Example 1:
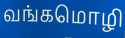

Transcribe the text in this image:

வங்கமொழி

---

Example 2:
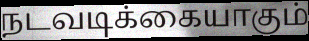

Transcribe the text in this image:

நடவடிக்கையாகும்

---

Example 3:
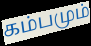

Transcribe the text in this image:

கம்பமும்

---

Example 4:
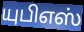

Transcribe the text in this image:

யுபிஎஸ்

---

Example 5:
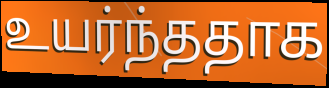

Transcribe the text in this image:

உயர்ந்ததாக